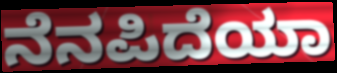
ನೆನಪಿದೆಯಾ